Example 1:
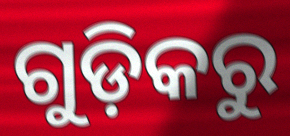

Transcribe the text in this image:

ଗୁଡ଼ିକରୁ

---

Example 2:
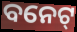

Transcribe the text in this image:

ବନେଟ୍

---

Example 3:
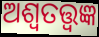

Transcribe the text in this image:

ଅଶ୍ୱତତ୍ତ୍ୱଜ୍ଞ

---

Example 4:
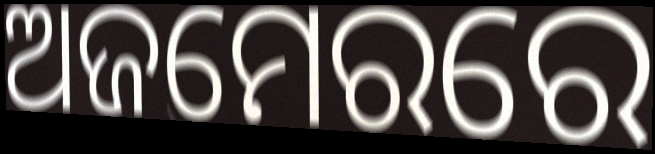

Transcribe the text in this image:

ଅଜମେରରେ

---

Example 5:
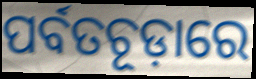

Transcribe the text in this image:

ପର୍ବତଚୂଡ଼ାରେ